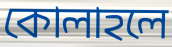
কোলাহলে